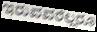
ಇರುವವರೆಲ್ಲರೂ